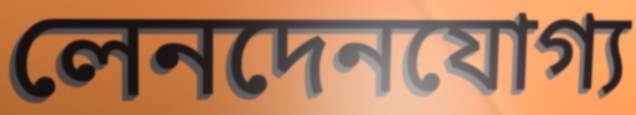
লেনদেনযোগ্য